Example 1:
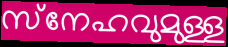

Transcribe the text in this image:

സ്‌നേഹവുമുള്ള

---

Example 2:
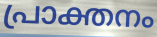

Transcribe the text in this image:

പ്രാക്തനം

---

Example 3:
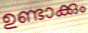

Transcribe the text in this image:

ഉണ്ടാക്കും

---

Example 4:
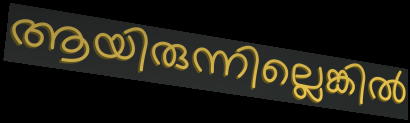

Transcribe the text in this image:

ആയിരുന്നില്ലെങ്കിൽ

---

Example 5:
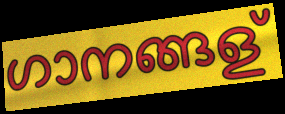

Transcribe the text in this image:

ഗാനങ്ങള്